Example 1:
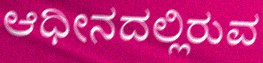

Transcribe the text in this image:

ಆಧೀನದಲ್ಲಿರುವ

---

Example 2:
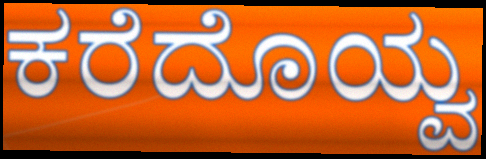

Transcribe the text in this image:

ಕರೆದೊಯ್ವ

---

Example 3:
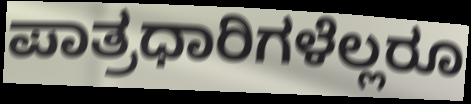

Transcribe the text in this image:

ಪಾತ್ರಧಾರಿಗಳೆಲ್ಲರೂ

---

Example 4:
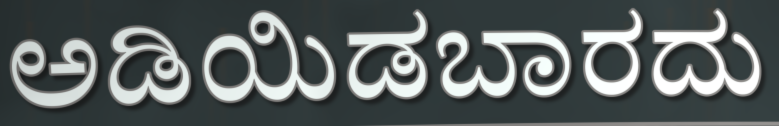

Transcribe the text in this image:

ಅಡಿಯಿಡಬಾರದು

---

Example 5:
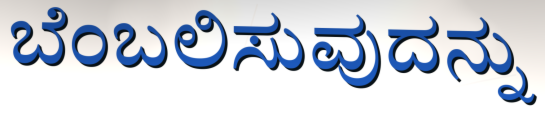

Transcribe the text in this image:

ಬೆಂಬಲಿಸುವುದನ್ನು